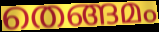
തെങ്ങമം